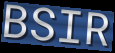
BSIR